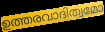
ഉത്തരവാദിത്വമോ